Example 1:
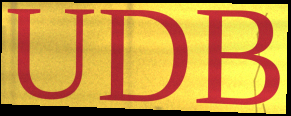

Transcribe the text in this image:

UDB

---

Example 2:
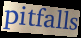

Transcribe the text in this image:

pitfalls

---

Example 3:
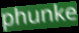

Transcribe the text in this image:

phunke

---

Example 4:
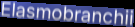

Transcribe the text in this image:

Elasmobranchii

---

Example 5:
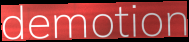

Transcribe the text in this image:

demotion